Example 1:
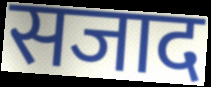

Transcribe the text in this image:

सजाद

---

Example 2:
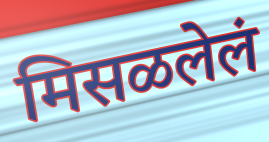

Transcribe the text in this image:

मिसळलेलं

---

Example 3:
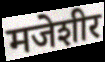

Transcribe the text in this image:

मजेशीर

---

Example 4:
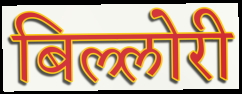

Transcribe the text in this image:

बिल्लोरी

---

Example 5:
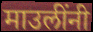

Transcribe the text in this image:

माउलींनी